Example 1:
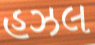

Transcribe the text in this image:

હઝલ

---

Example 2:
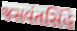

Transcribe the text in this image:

જસવંતસિંહે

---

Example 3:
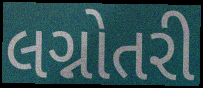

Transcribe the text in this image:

લગ્નોતરી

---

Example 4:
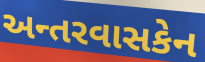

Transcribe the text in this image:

અન્તરવાસકેન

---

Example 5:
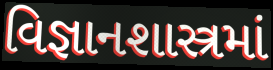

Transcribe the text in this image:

વિજ્ઞાનશાસ્ત્રમાં